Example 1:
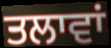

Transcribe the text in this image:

ਤਲਾਵਾਂ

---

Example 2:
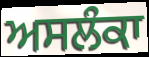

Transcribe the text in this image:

ਅਸਲੰਕਾ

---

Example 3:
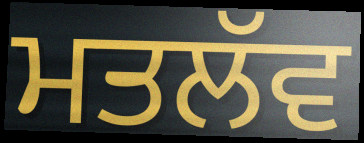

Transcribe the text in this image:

ਮਤਲੱਵ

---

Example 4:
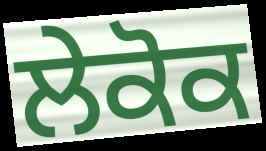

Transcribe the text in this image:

ਲੇਕੋਕ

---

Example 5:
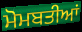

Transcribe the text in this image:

ਮੋਮਬਤੀਆਂ